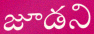
జూడని